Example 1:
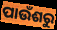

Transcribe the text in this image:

ପାଉଁଶରୁ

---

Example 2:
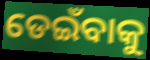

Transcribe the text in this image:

ଡେଇଁବାକୁ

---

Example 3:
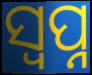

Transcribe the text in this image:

ସ୍ବପ୍ନ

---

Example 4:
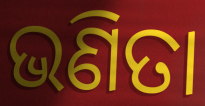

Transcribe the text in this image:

ଭଣିତା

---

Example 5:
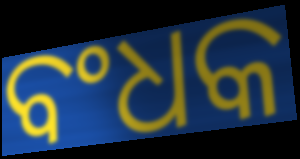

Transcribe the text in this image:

ବଂଧକ